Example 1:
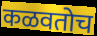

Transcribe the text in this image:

कळवतोच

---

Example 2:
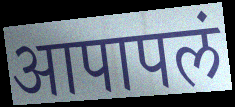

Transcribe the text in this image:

आपापलं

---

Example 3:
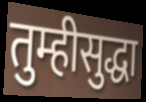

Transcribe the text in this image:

तुम्हीसुद्धा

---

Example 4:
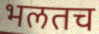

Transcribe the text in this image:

भलतच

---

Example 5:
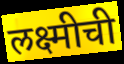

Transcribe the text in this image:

लक्ष्मीची